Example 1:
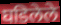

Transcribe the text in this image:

घडिलेले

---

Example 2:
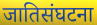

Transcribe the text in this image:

जातिसंघटना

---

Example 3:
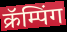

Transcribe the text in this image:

क्रॅम्पिंग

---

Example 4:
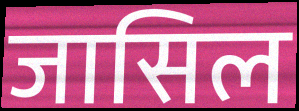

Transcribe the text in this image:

जासिल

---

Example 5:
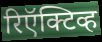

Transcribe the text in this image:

रिऍक्टिव्ह